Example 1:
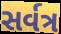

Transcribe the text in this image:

સર્વત્ર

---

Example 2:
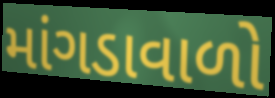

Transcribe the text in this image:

માંગડાવાળો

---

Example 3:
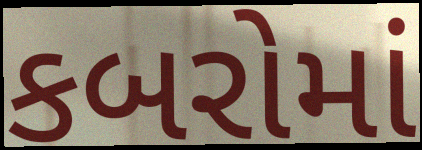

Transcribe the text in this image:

કબરોમાં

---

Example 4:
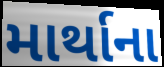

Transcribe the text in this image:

માર્થાના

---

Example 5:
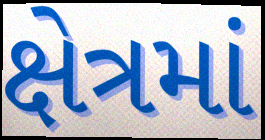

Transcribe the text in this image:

ક્ષેત્રમાં